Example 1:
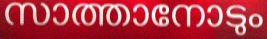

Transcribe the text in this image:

സാത്താനോടും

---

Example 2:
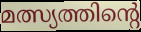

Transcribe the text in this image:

മത്സ്യത്തിന്റെ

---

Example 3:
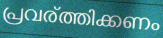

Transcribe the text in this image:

പ്രവര്ത്തിക്കണം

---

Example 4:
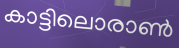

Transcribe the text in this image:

കാട്ടിലൊരാൺ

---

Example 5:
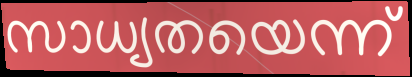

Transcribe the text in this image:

സാധ്യതയെന്ന്